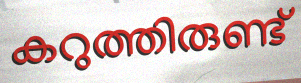
കറുത്തിരുണ്ട്